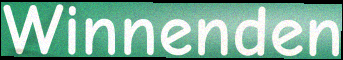
Winnenden